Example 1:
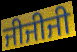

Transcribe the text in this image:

ਜੀਜੀਜੀ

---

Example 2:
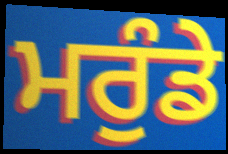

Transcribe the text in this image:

ਮਰੁੰਡੇ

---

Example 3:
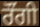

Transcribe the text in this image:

ਰੌਂਗੀ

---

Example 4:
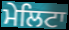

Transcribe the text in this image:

ਮੇਲਿਟਾ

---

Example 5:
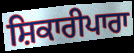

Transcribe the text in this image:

ਸ਼ਿਕਾਰੀਪਾਰਾ